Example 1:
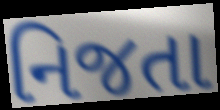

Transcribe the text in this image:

નિજતા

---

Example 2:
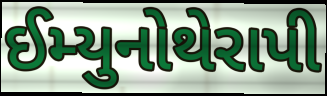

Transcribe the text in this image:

ઈમ્યુનોથેરાપી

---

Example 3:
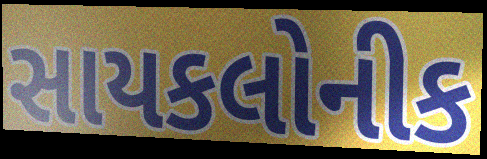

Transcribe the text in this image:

સાયકલોનીક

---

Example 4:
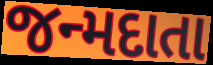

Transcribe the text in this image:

જન્મદાતા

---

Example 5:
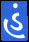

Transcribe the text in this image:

હં